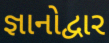
જ્ઞાનોદ્વાર